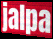
jalpa